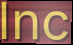
Inc